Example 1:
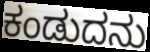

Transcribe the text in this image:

ಕಂಡುದನು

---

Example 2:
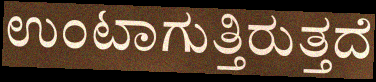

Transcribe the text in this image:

ಉಂಟಾಗುತ್ತಿರುತ್ತದೆ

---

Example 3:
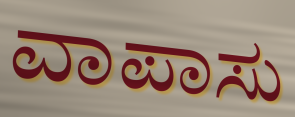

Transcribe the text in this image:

ವಾಪಾಸು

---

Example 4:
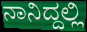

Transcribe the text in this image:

ನಾನಿದ್ದಲ್ಲಿ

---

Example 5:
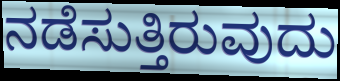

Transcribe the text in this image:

ನಡೆಸುತ್ತಿರುವುದು